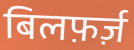
बिलफ़र्ज़